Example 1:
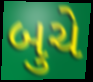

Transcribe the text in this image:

બુચે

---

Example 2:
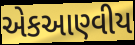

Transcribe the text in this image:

એકઆણ્વીય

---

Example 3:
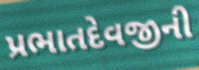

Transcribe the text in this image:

પ્રભાતદેવજીની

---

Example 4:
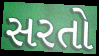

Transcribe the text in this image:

સરતો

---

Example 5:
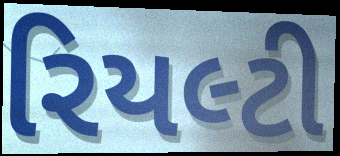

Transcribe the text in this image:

રિયલ્ટી